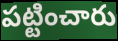
పట్టించారు